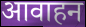
आवाहन